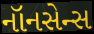
નૉનસેન્સ